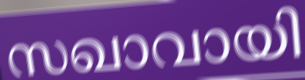
സഖാവായി